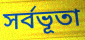
সর্বভূতা